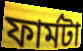
ফার্মটা